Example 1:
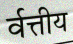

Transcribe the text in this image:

र्वत्तीय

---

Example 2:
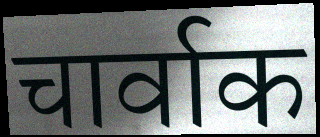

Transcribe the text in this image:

चार्वाक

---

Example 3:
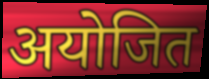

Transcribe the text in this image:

अयोजित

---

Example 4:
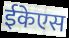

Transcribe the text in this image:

ईकेएस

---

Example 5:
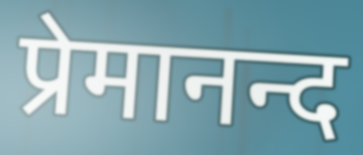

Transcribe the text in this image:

प्रेमानन्द